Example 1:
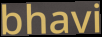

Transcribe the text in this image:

bhavi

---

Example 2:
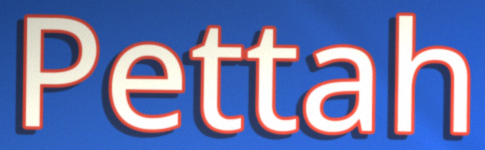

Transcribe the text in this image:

Pettah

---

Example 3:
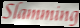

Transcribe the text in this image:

Slamming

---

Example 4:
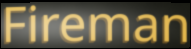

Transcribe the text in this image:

Fireman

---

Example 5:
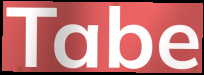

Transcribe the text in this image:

Tabe